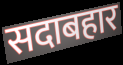
सदाबहार